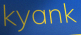
kyank